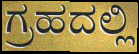
ಗ್ರಹದಲ್ಲಿ